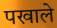
पखाले